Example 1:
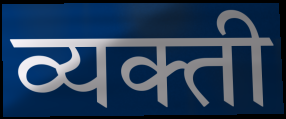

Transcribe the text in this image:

व्यक्‍ती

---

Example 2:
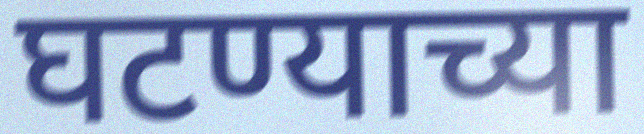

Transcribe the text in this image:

घटण्याच्या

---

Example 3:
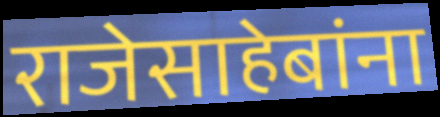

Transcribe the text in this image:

राजेसाहेबांना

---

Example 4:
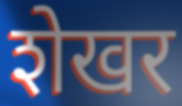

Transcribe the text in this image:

शेखर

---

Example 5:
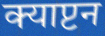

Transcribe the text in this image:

क्याप्टन